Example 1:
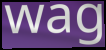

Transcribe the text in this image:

wag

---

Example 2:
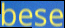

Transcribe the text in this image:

bese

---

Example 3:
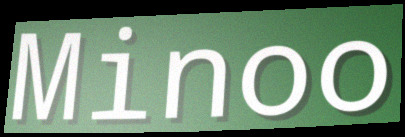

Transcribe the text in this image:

Minoo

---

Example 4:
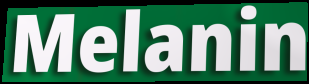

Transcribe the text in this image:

Melanin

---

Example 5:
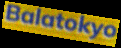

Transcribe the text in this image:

Balatokyo